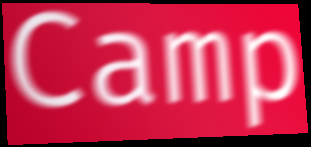
Camp